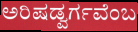
ಅರಿಷಡ್ವರ್ಗವೆಂಬ